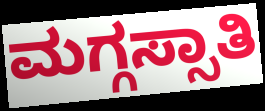
ಮಗ್ಗಸ್ಸಾತಿ